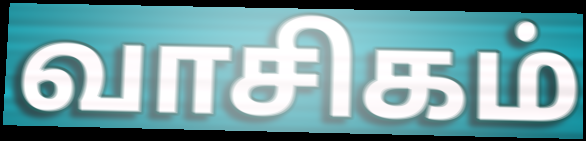
வாசிகம்